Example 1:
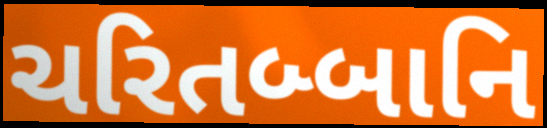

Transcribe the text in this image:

ચરિતબ્બાનિ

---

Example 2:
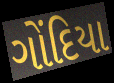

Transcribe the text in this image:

ગોંદિયા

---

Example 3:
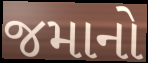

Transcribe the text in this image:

જમાનો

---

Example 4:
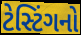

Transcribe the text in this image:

ટેસ્ટિંગનો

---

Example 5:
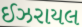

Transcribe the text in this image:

ઈઝરાયલ